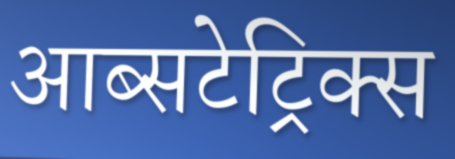
आब्सटेट्रिक्स